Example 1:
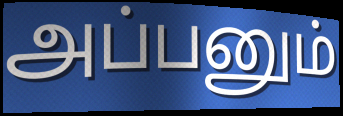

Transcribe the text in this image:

அப்பனும்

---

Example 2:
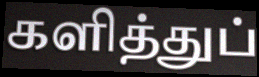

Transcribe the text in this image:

களித்துப்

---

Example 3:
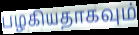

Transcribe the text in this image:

பழகியதாகவும்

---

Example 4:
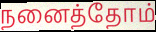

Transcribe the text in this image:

நனைத்தோம்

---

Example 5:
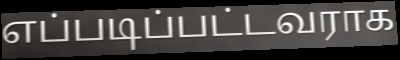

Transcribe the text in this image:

எப்படிப்பட்டவராக